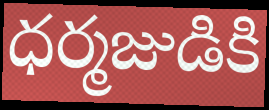
ధర్మజుడికి